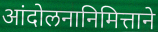
आंदोलनानिमित्ताने